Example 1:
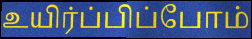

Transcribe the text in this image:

உயிர்ப்பிப்போம்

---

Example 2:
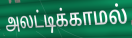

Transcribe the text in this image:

அலட்டிக்காமல்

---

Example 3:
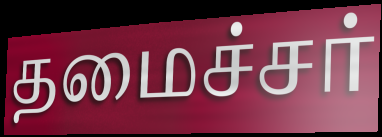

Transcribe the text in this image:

தமைச்சர்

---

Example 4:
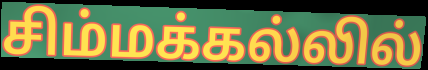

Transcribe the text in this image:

சிம்மக்கல்லில்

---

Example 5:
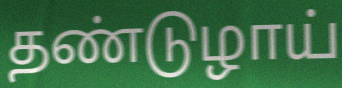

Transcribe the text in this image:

தண்டுழாய்